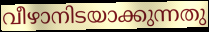
വീഴാനിടയാക്കുന്നതു